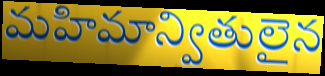
మహిమాన్వితులైన